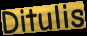
Ditulis